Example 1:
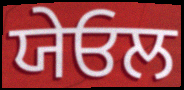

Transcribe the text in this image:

ਯੇਓਲ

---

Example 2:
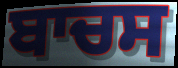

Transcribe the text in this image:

ਬਾਚਸ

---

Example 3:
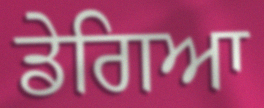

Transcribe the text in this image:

ਡੇਗਿਆ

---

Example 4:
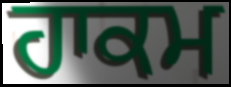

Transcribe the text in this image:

ਹਾਕਮ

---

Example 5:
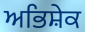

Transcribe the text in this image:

ਅਭਿਸ਼ੇਕ